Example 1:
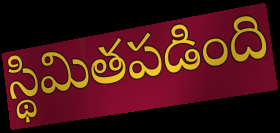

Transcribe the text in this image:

స్థిమితపడింది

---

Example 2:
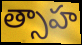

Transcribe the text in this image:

త్సాహ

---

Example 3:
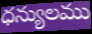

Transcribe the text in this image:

ధన్యులము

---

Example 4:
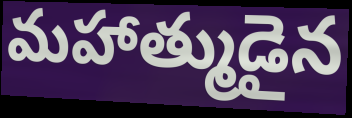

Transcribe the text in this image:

మహాత్ముడైన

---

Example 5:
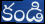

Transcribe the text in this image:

కండి